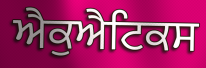
ਐਕੁਐਟਿਕਸ